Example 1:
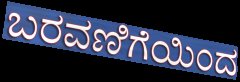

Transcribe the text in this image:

ಬರವಣಿಗೆಯಿಂದ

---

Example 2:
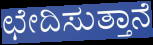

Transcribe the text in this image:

ಛೇದಿಸುತ್ತಾನೆ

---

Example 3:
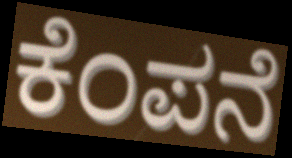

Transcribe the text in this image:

ಕೆಂಪನೆ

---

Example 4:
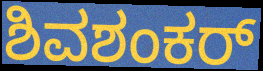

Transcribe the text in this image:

ಶಿವಶಂಕರ್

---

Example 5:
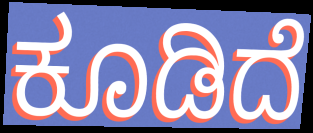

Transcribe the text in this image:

ಕೂಡಿದೆ